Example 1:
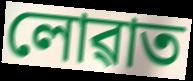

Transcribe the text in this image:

লোৱাত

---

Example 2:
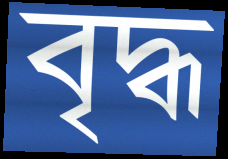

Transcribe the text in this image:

বৃদ্ধ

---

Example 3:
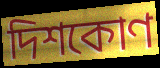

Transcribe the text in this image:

দিশকোণ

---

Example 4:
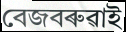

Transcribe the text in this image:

বেজবৰুৱাই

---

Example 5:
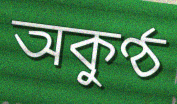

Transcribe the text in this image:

অকুণ্ঠ